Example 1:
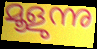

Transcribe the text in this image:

മൂളുന്നു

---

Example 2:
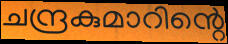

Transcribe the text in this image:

ചന്ദ്രകുമാറിന്റെ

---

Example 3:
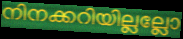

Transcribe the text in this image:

നിനക്കറിയില്ലല്ലോ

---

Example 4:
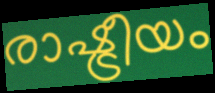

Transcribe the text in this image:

രാഷ്ട്രീയം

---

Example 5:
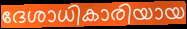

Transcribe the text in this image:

ദേശാധികാരിയായ